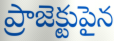
ప్రాజెక్టుపైన